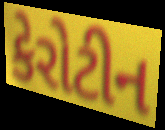
કેરોટીન